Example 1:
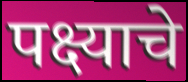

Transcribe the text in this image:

पक्ष्याचे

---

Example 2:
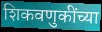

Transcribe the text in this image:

शिकवणुकींच्या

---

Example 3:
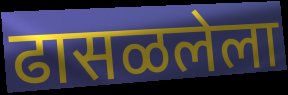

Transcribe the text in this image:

ढासळलेला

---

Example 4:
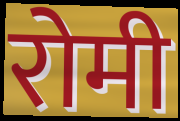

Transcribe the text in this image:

रोमी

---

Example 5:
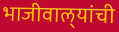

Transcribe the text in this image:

भाजीवाल्यांची